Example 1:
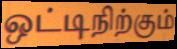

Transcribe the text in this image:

ஒட்டிநிற்கும்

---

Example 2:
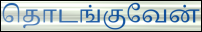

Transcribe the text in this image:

தொடங்குவேன்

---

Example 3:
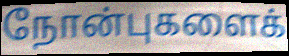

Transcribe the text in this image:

நோன்புகளைக்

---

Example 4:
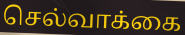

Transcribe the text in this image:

செல்வாக்கை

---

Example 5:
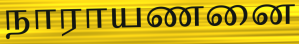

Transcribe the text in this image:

நாராயணனை